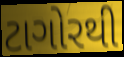
ટાગોરથી